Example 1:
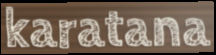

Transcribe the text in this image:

karatana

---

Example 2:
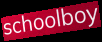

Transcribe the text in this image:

schoolboy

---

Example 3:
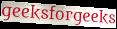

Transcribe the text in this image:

geeksforgeeks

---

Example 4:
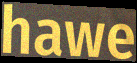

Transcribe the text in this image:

hawe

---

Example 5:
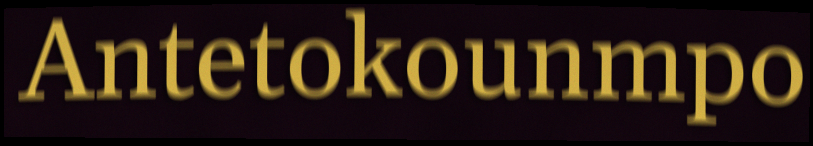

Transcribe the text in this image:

Antetokounmpo